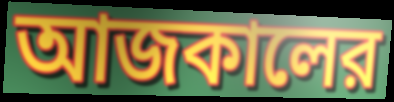
আজকালের